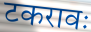
टकरावः